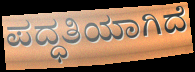
ಪದ್ಧತಿಯಾಗಿದೆ